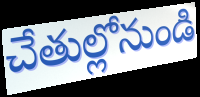
చేతుల్లోనుండి